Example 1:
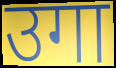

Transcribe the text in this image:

उगा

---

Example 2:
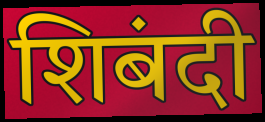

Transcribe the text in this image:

शिबंदी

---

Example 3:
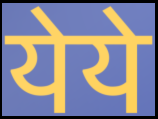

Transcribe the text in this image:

येये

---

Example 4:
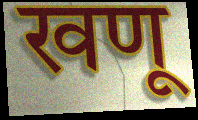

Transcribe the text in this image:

खणू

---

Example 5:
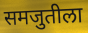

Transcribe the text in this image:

समजुतीला